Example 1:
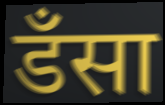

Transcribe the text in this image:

डँसा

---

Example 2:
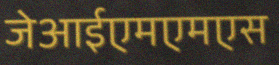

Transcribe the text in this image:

जेआईएमएमएस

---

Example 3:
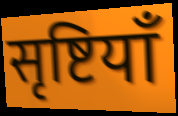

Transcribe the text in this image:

सृष्टियाँ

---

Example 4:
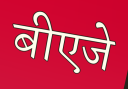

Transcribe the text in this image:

बीएजे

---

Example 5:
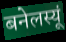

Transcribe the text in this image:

बनेलस्यूं